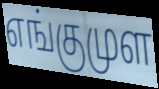
எங்குமுள